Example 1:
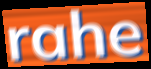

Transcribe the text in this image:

rahe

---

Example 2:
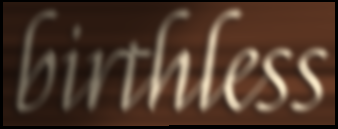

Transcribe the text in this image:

birthless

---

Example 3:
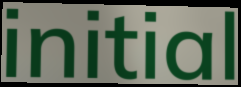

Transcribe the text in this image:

initial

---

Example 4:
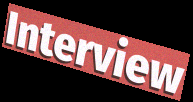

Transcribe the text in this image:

Interview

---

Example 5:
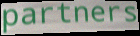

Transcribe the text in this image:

partners